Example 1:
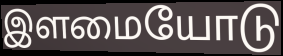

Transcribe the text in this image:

இளமையோடு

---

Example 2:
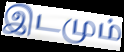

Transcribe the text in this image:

இடமும்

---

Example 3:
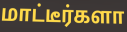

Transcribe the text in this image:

மாட்டீர்களா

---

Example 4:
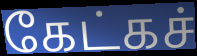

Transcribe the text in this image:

கேட்கச்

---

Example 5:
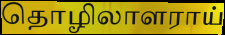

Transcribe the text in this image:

தொழிலாளராய்